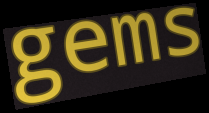
gems